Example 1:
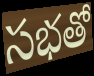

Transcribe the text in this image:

సభతో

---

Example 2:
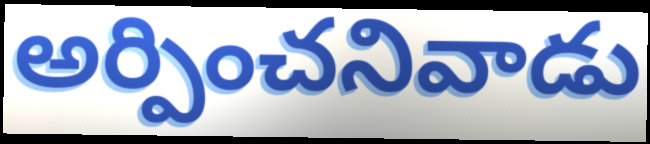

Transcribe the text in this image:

అర్పించనివాడు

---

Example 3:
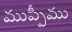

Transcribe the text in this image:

ముప్పీము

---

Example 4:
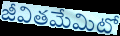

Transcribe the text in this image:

జీవితమేమిటో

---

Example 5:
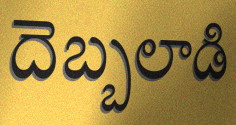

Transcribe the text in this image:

దెబ్బలాడి